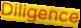
Diligence